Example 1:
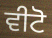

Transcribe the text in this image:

ਵੀਟੋ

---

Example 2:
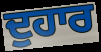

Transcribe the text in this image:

ਦੁਹਾਰ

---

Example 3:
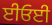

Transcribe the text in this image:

ਈਓਈ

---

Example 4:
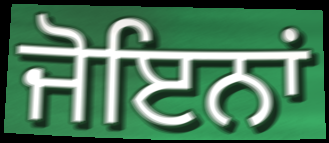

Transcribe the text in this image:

ਜੋਇਨਾਂ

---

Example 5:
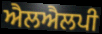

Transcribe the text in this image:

ਐਲਐਲਪੀ